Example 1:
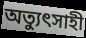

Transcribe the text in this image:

অত্যুৎসাহী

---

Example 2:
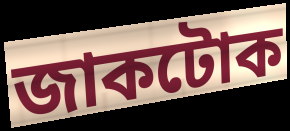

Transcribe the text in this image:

জাকটোক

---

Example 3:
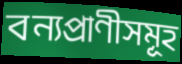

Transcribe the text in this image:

বন্যপ্ৰাণীসমূহ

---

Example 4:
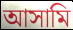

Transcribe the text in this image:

আসামি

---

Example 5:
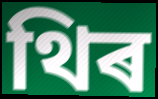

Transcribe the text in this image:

থিৰ